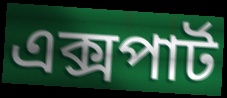
এক্সপার্ট